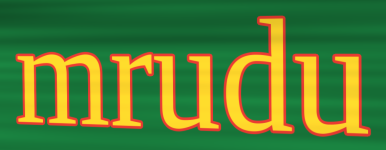
mrudu